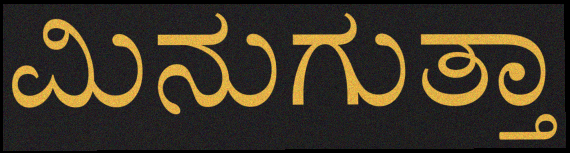
ಮಿನುಗುತ್ತಾ